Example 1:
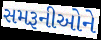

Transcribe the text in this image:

સમરૂનીઓને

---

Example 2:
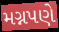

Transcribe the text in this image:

મગ્નપણે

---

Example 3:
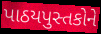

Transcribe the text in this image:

પાઠયપુસ્તકોને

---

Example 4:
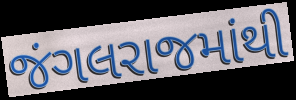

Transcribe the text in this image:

જંગલરાજમાંથી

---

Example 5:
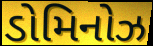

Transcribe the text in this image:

ડોમિનોઝ